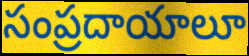
సంప్రదాయాలూ